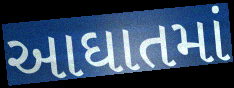
આઘાતમાં